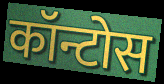
कॉन्टोस